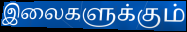
இலைகளுக்கும்